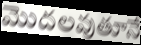
మొదలవుతూనే